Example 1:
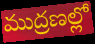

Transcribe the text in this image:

ముద్రణల్లో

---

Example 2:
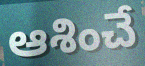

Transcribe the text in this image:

ఆశించే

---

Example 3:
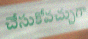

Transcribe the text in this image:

చేసుకోవచ్చుగా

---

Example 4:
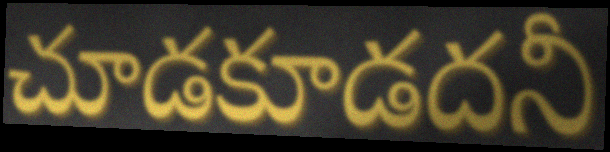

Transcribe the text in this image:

చూడకూడదనీ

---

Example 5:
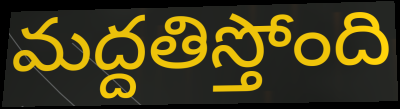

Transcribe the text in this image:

మద్దతిస్తోంది